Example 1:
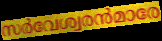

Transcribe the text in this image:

സർവേശ്വരൻമാരേ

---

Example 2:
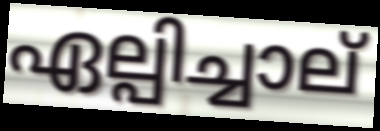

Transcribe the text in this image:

ഏല്പിച്ചാല്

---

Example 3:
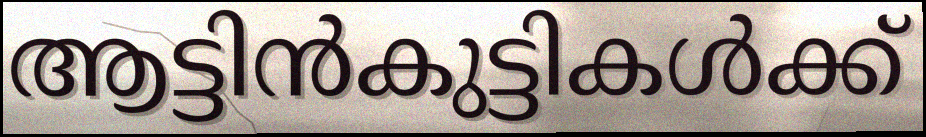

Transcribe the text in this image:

ആട്ടിൻകുട്ടികൾക്ക്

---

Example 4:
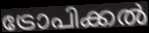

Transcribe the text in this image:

ട്രോപിക്കൽ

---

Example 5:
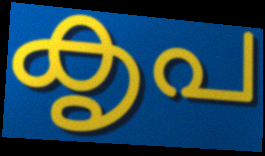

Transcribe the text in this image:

കൃപ